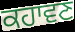
ਕਹਾਵਣ